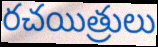
రచయిత్రులు